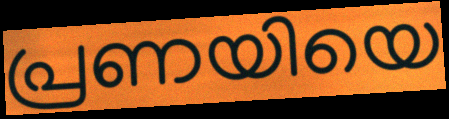
പ്രണയിയെ